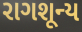
રાગશૂન્ય